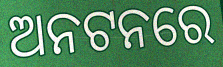
ଅନଟନରେ